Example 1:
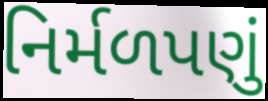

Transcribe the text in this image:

નિર્મળપણું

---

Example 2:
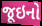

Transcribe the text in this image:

જૂઇનો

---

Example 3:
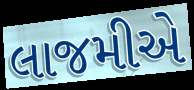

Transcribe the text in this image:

લાજમીએ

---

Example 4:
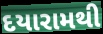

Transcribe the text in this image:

દયારામથી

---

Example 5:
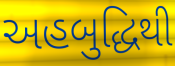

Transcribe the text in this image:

અહબુદ્ધિથી